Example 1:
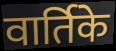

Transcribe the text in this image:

वार्तिके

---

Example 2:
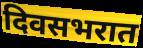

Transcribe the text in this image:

दिवसभरात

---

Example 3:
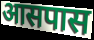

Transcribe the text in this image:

आसपास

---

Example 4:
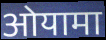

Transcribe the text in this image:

ओयामा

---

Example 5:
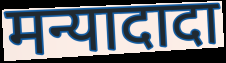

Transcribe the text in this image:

मन्यादादा